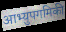
आभ्युपगमिकी